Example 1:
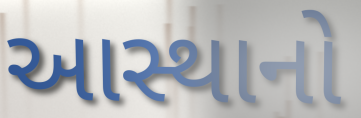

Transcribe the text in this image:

આસ્થાનો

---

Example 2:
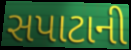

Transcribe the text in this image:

સપાટાની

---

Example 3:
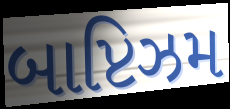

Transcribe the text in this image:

બાપ્ટિઝમ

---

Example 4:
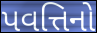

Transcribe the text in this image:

પવત્તિનો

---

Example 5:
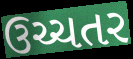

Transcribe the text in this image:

ઉચ્ચતર